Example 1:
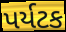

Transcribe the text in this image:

પર્યટક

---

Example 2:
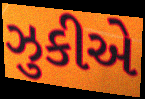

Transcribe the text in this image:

ઝુકીએ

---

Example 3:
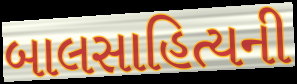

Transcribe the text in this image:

બાલસાહિત્યની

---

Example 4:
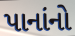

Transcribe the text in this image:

પાનાંનો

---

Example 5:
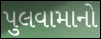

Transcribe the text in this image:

પુલવામાનો